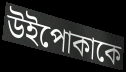
উইপোকাকে